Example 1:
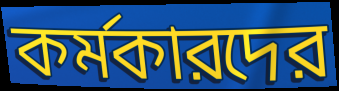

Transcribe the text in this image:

কর্মকারদের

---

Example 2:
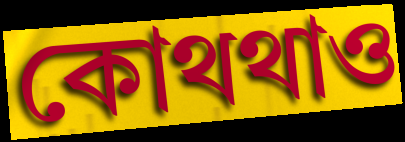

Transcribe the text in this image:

কোথথাও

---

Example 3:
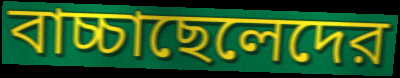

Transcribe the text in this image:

বাচ্চাছেলেদের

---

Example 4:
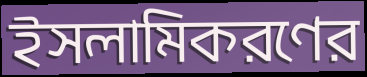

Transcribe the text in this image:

ইসলামিকরণের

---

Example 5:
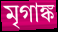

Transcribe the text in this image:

মৃগাঙ্ক